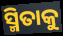
ସ୍ମିତାକୁ